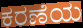
ಕರಣೆಯ